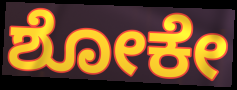
ಶೋಕೇ